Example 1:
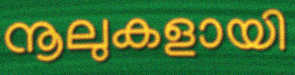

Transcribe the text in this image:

നൂലുകളായി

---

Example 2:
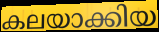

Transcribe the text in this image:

കലയാക്കിയ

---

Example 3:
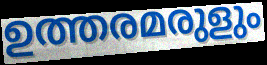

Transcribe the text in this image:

ഉത്തരമരുളും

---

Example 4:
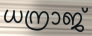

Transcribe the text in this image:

ധന്രാജ്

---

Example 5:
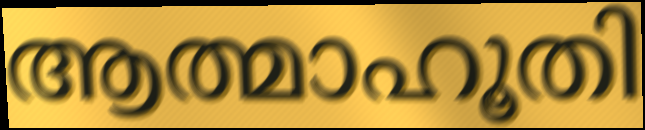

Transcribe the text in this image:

ആത്മാഹൂതി